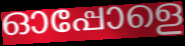
ഓപ്പോളെ